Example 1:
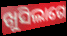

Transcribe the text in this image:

ଖୁସିଲାଗେ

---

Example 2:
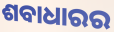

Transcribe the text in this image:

ଶବାଧାରର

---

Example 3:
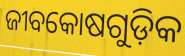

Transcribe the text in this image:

ଜୀବକୋଷଗୁଡ଼ିକ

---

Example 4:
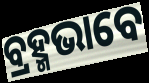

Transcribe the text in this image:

ବ୍ରହ୍ମଭାବେ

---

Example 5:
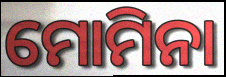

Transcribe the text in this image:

ମୋମିନା